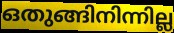
ഒതുങ്ങിനിന്നില്ല